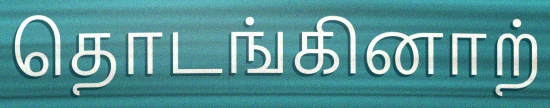
தொடங்கினாற்